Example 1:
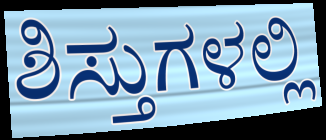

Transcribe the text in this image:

ಶಿಸ್ತುಗಳಲ್ಲಿ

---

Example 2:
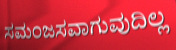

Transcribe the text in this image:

ಸಮಂಜಸವಾಗುವುದಿಲ್ಲ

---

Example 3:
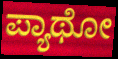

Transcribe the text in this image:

ಪ್ಯಾಥೋ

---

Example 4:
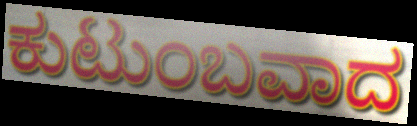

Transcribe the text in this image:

ಕುಟುಂಬವಾದ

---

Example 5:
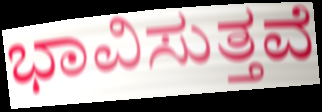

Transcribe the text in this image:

ಭಾವಿಸುತ್ತವೆ